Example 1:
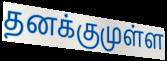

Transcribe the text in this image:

தனக்குமுள்ள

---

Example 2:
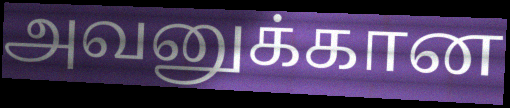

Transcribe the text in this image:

அவனுக்கான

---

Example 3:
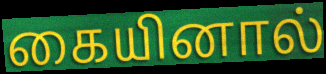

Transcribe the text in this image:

கையினால்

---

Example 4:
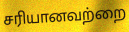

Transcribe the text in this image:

சரியானவற்றை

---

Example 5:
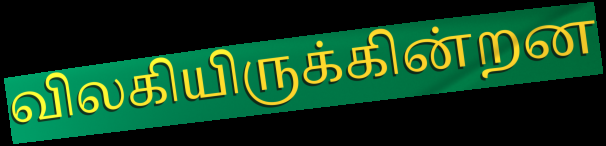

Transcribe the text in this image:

விலகியிருக்கின்றன